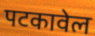
पटकावेल